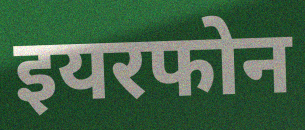
इयरफोन